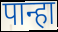
पान्हा